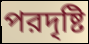
পরদৃষ্টি